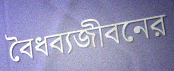
বৈধব্যজীবনের